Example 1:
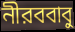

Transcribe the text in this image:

নীরববাবু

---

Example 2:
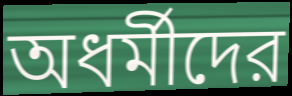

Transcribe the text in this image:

অধর্মীদের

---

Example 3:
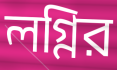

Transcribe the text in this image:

লগ্নির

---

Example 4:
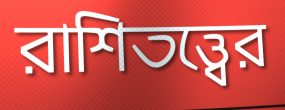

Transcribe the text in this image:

রাশিতত্ত্বের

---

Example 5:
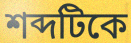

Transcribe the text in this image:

শব্দটিকে